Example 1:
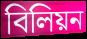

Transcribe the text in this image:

বিলিয়ন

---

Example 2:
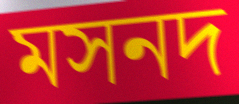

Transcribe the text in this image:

মসনদ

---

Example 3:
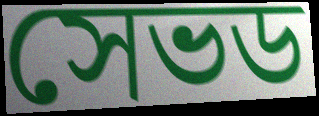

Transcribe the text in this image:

সেভড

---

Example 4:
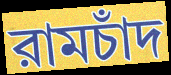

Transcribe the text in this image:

রামচাঁদ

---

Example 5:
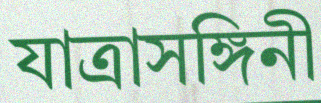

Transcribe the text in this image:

যাত্রাসঙ্গিনী